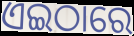
ଏଇଠାରେ